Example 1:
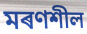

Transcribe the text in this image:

মৰণশীল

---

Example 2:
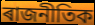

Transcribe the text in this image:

ৰাজনীতিক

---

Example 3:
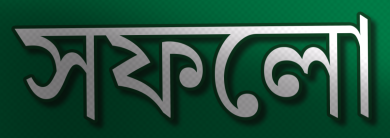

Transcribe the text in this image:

সফলো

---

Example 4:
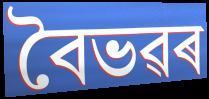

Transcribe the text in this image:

বৈভৱৰ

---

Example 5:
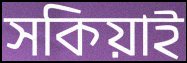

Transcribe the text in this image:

সকিয়াই